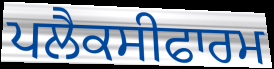
ਪਲੈਕਸੀਫਾਰਮ